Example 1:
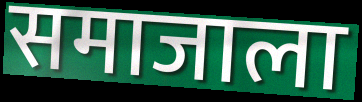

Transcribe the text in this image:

समाजाला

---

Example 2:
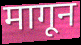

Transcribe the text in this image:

मागून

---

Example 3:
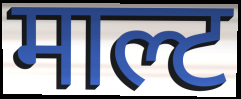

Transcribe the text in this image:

माल्ट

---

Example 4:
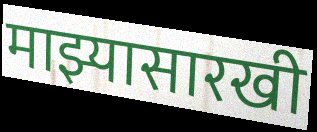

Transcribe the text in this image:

माझ्यासारखी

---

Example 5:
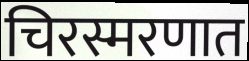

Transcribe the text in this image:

चिरस्मरणात